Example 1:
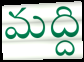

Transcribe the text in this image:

మద్ది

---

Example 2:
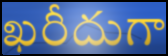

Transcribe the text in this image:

ఖరీదుగా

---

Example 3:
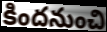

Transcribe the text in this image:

కిందనుంచి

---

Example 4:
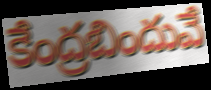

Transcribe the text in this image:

కేంద్రబిందువే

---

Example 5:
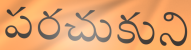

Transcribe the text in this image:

పరచుకుని